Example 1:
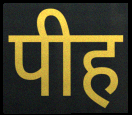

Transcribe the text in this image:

पीह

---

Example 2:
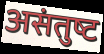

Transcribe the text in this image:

असंतुष्‍ट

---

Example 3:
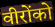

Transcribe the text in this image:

वीरोंको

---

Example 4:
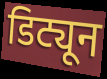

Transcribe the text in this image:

डिट्यून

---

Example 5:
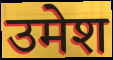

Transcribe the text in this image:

उमेश